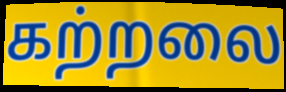
கற்றலை